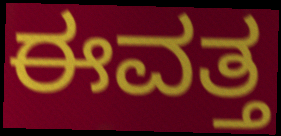
ಈವತ್ತ